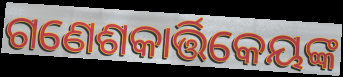
ଗଣେଶକାର୍ତ୍ତିକେୟଙ୍କ